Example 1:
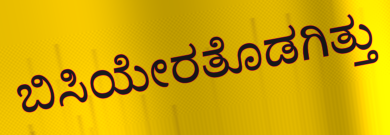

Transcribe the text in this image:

ಬಿಸಿಯೇರತೊಡಗಿತ್ತು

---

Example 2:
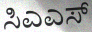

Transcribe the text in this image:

ಸಿಎಎಸ್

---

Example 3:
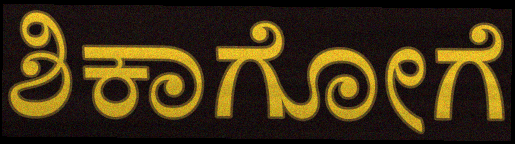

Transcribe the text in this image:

ಶಿಕಾಗೋಗೆ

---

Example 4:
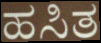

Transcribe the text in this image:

ಹಸಿತ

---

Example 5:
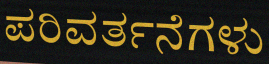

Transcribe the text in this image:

ಪರಿವರ್ತನೆಗಳು